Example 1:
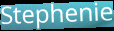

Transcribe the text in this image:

Stephenie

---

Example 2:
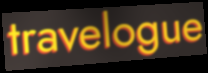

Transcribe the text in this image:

travelogue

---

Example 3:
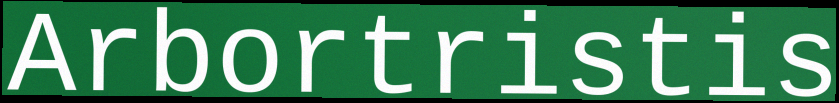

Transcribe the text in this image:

Arbortristis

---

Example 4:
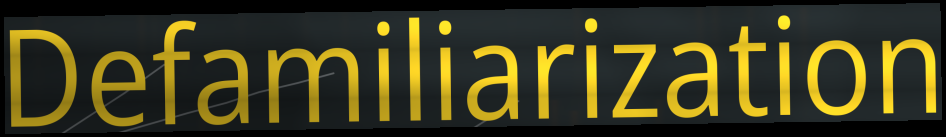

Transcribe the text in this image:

Defamiliarization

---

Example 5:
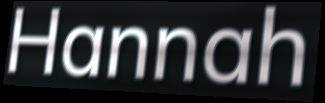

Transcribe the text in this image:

Hannah